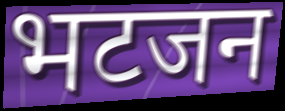
भटजन